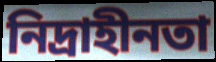
নিদ্ৰাহীনতা